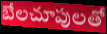
బేలచూపులతో